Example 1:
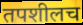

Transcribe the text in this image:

तपशीलच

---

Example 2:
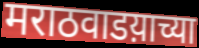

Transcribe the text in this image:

मराठवाडय़ाच्या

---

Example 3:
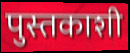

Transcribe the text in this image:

पुस्तकाशी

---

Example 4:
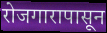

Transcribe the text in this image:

रोजगारापासून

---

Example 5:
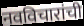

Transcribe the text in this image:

नवविचारांची